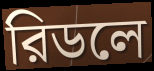
রিডলে